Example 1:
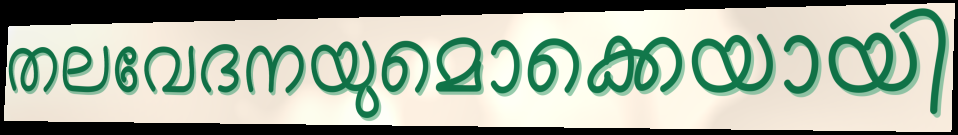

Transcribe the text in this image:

തലവേദനയുമൊക്കെയായി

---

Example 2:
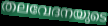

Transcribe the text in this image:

തലവേദനയുടെ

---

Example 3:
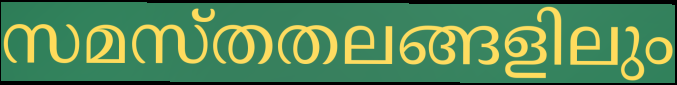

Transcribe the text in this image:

സമസ്തതലങ്ങളിലും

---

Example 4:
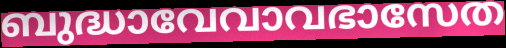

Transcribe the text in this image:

ബുദ്ധാവേവാവഭാസേത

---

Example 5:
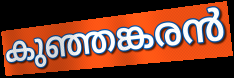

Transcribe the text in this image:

കുഞ്ഞങ്കരൻ